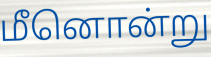
மீனொன்று